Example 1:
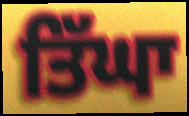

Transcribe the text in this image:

ਤਿੱਘਾ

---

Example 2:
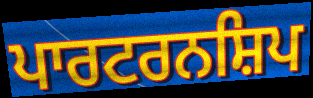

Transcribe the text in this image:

ਪਾਰਟਰਨਸ਼ਿਪ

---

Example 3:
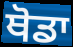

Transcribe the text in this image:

ਥੋਡਾ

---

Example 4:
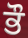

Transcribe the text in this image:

ਭੌ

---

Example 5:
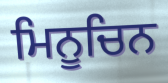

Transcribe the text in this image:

ਮਿਨੂਚਿਨ